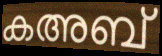
കഅബ്